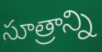
సూత్రాన్ని